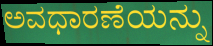
ಅವಧಾರಣೆಯನ್ನು